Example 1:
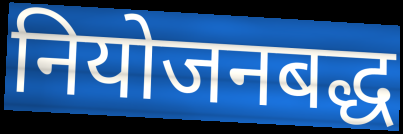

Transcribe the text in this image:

नियोजनबद्ध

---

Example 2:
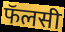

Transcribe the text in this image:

फॅलसी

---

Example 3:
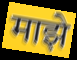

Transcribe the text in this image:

माझे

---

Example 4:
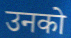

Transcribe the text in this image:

उनको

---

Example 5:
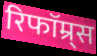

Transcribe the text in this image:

रिफॉम्र्स